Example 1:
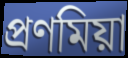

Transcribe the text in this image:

প্রণমিয়া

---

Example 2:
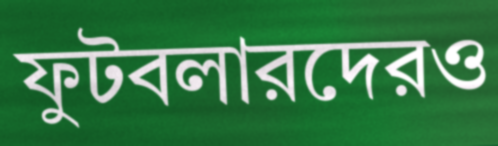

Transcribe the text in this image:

ফুটবলারদেরও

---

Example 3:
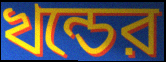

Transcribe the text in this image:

খন্ডের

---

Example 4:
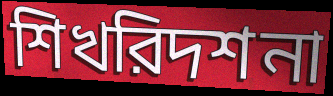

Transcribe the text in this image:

শিখরিদশনা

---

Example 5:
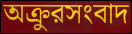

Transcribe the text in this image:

অক্রুরসংবাদ